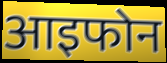
आइफोन